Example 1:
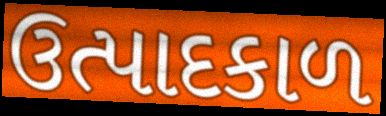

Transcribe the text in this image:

ઉત્પાદકાળ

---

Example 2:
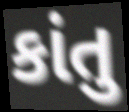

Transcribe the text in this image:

કાંતુ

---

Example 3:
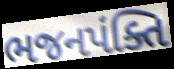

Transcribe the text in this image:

ભજનપંક્તિ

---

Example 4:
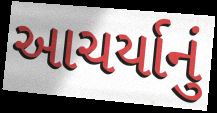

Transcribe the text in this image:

આચર્યાનું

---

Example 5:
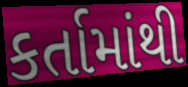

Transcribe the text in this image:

કર્તામાંથી